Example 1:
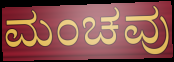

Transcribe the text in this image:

ಮಂಚವು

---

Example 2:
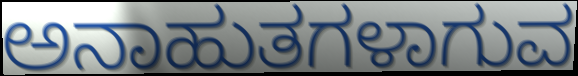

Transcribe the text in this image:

ಅನಾಹುತಗಳಾಗುವ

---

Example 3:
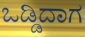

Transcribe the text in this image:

ಒಡ್ಡಿದಾಗ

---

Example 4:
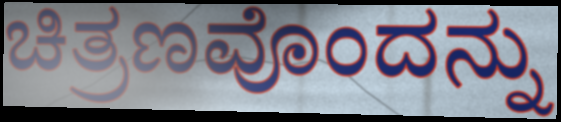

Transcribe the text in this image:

ಚಿತ್ರಣವೊಂದನ್ನು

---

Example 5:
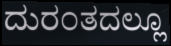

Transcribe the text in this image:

ದುರಂತದಲ್ಲೂ